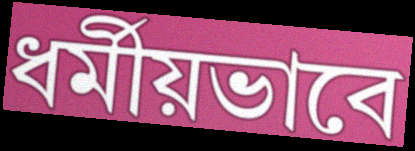
ধর্মীয়ভাবে